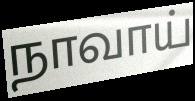
நாவாய்